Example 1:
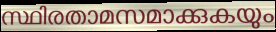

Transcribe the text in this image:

സ്ഥിരതാമസമാക്കുകയും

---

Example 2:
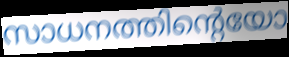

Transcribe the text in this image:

സാധനത്തിന്റെയോ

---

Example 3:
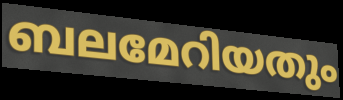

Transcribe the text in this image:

ബലമേറിയതും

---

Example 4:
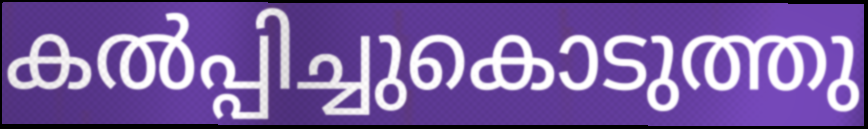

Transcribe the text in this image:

കൽപ്പിച്ചുകൊടുത്തു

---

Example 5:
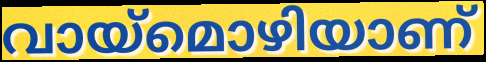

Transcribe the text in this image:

വായ്മൊഴിയാണ്